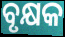
ବୃକ୍ଷକ